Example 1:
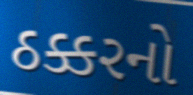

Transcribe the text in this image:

ઠક્કરનો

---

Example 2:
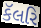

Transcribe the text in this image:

કૅલરિ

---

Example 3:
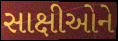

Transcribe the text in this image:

સાક્ષીઓને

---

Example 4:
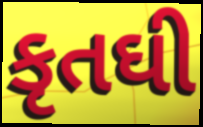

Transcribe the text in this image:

કૃતઘી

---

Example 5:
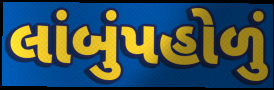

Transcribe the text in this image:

લાંબુંપહોળું